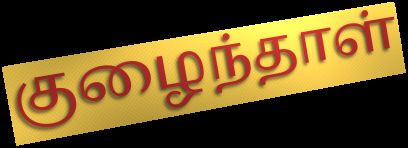
குழைந்தாள்